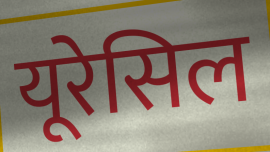
यूरेसिल